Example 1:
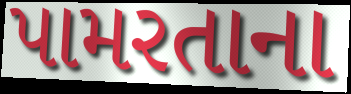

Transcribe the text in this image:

પામરતાના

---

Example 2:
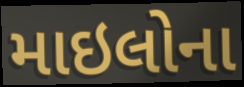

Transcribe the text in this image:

માઇલોના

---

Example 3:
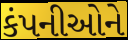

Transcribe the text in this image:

કંપનીઓને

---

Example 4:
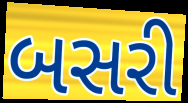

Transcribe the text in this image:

બસરી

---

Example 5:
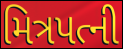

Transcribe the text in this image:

મિત્રપત્ની